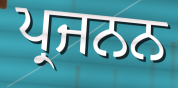
ਪ੍ਰਜਨਨ